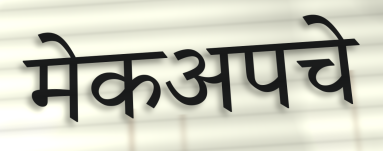
मेकअपचे